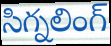
సిగ్నలింగ్